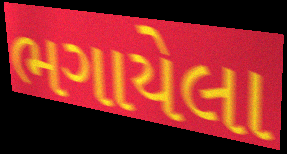
ભગાયેલા